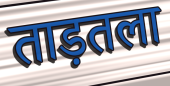
ताड़तला